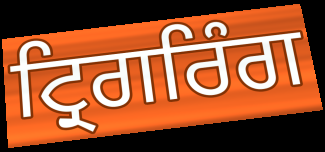
ਟ੍ਰਿਗਰਿੰਗ